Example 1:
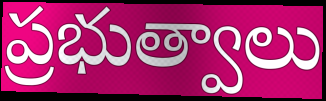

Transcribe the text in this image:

ప్రభుత్వాలు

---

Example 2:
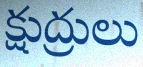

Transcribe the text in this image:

క్షుద్రులు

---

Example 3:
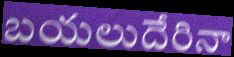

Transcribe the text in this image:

బయలుదేరినా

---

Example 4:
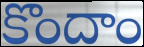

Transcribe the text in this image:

కొందాం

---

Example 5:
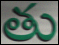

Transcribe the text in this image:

తు